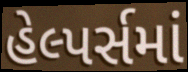
હેલ્પર્સમાં